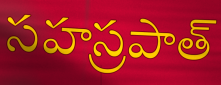
సహస్రపాత్